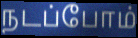
நடப்போம்